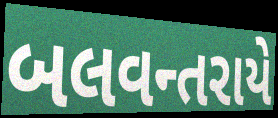
બલવન્તરાયે